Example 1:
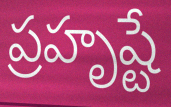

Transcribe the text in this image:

ప్రహృష్టే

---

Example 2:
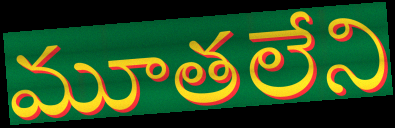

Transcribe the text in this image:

మూతలేని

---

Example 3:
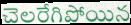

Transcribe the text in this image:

చెలరేగిపోయిన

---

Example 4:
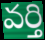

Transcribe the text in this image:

వర్తి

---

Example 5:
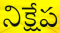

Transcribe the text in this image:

నిక్షేప